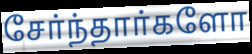
சேர்ந்தார்களோ